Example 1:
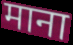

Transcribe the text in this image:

माना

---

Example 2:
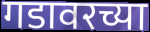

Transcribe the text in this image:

गडावरच्या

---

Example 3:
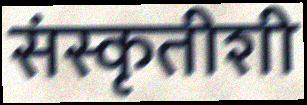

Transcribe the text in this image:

संस्कृतीशी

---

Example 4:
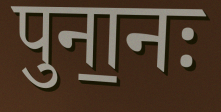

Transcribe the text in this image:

पुना॒नः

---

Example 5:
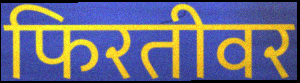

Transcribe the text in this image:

फिरतीवर